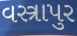
વસ્ત્રાપુર